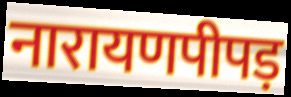
नारायणपीपड़